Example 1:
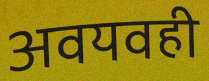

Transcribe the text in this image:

अवयवही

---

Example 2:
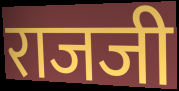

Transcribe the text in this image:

राजजी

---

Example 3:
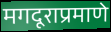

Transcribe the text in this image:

मगदूराप्रमाणे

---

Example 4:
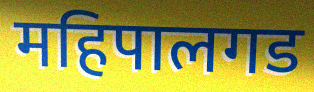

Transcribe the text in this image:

महिपालगड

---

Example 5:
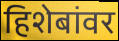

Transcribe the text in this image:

हिशेबांवर